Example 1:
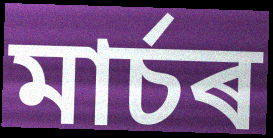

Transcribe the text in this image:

মাৰ্চৰ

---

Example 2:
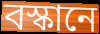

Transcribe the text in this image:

বস্কানে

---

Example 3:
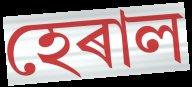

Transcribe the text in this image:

হেৰাল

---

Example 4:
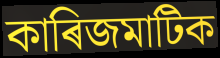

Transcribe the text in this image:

কাৰিজমাটিক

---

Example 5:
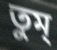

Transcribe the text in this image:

তুম্